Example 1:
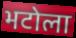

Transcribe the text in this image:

भटोला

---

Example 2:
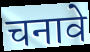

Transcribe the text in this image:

चनावे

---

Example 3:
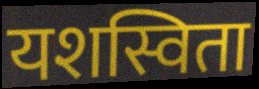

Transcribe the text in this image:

यशस्विता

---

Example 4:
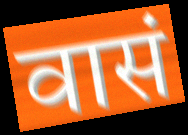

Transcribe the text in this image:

वासं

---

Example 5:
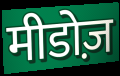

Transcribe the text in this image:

मीडोज़